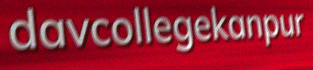
davcollegekanpur